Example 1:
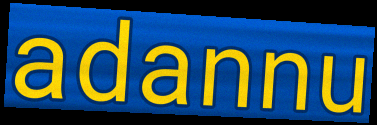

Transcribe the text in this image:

adannu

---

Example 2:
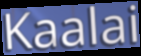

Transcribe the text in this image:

Kaalai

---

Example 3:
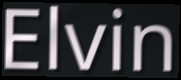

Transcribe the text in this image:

Elvin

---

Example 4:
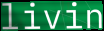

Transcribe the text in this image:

livin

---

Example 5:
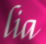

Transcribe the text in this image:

lia